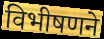
विभीषणने